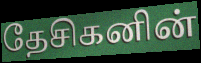
தேசிகனின்